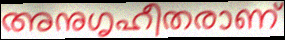
അനുഗൃഹീതരാണ്